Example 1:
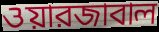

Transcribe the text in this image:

ওয়ারজাবাল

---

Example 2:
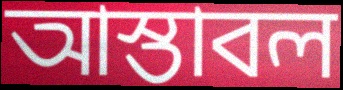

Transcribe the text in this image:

আস্তাবল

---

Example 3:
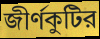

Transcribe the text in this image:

জীর্ণকুটির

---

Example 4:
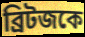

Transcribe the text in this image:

ব্রিটজকে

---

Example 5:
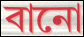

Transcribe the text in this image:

বানো